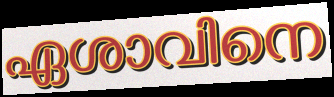
ഏശാവിനെ